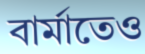
বার্মাতেও